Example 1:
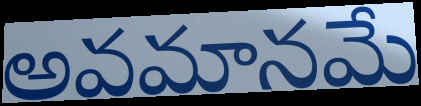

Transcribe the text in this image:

అవమానమే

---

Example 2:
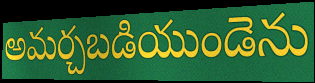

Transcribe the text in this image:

అమర్చబడియుండెను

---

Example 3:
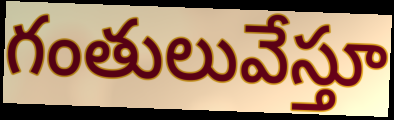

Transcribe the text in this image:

గంతులువేస్తూ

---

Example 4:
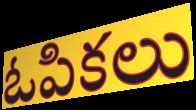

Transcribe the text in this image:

ఓపికలు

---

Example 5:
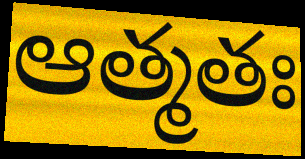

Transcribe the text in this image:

ఆత్మతః